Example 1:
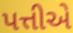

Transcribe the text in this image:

પત્તીએ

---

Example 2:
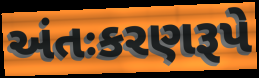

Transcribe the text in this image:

અંતઃકરણરૂપે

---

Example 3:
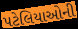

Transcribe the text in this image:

પટેલિયાઓની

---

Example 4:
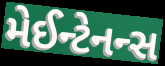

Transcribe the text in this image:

મેઈન્ટેનન્સ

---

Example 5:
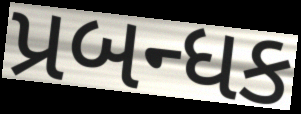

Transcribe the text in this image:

પ્રબન્ધક